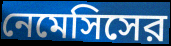
নেমেসিসের